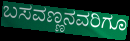
ಬಸವಣ್ಣನವರಿಗೂ